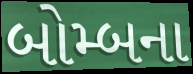
બોમ્બના